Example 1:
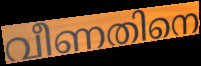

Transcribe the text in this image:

വീണതിനെ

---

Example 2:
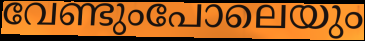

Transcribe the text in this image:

വേണ്ടുംപോലെയും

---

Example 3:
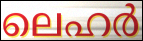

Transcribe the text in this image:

ലെഹർ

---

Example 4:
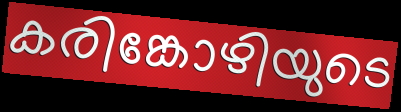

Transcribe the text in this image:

കരിങ്കോഴിയുടെ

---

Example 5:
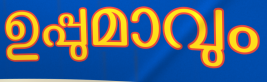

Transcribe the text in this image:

ഉപ്പുമാവും